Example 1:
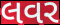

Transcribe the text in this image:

લવર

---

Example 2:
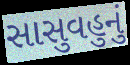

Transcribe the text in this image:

સાસુવહુનું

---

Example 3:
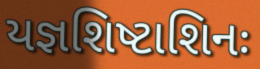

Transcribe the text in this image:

યજ્ઞશિષ્ટાશિનઃ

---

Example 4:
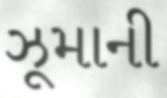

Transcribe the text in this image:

ઝૂમાની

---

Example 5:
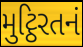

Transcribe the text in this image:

મુટ્ઠિરતનં